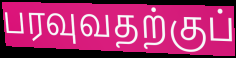
பரவுவதற்குப்